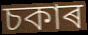
চকাৰ